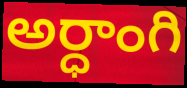
అర్ధాంగి